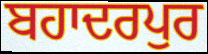
ਬਹਾਦਰਪੁਰ